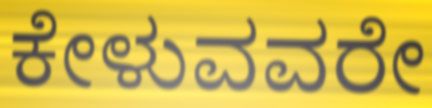
ಕೇಳುವವರೇ